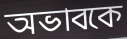
অভাবকে